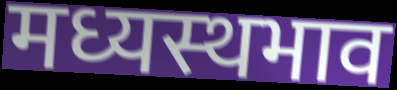
मध्यस्थभाव